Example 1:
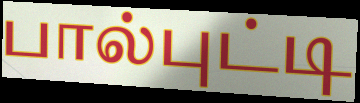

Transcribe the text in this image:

பால்புட்டி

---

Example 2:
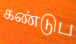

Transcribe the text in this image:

கண்டுப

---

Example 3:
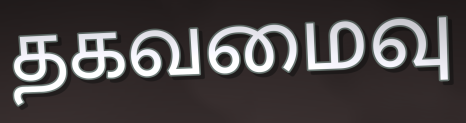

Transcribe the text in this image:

தகவமைவு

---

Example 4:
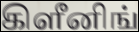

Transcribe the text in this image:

கிளீனிங்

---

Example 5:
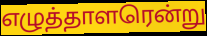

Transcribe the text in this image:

எழுத்தாளரென்று